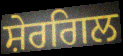
ਸ਼ੇਰਗਿਲ